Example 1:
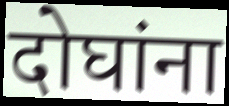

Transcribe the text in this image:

दोघांना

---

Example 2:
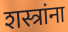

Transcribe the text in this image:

शस्त्रांना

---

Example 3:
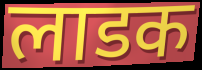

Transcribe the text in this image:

लाडक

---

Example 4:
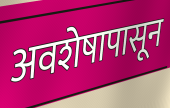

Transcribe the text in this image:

अवशेषापासून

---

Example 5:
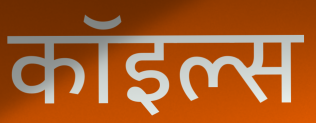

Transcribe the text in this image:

कॉइल्स